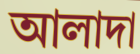
আলাদা